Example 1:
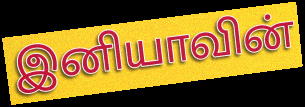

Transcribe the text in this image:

இனியாவின்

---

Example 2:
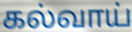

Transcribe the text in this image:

கல்வாய்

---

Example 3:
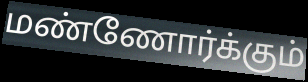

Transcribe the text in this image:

மண்ணோர்க்கும்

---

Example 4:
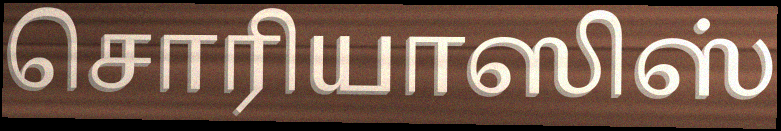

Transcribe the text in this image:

சொரியாஸிஸ்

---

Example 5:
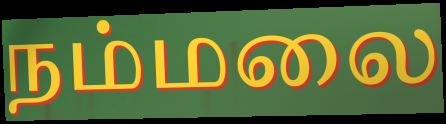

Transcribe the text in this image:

நம்மலை